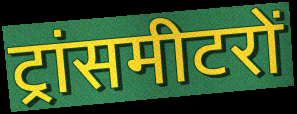
ट्रांसमीटरों